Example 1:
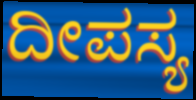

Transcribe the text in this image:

ದೀಪಸ್ಯ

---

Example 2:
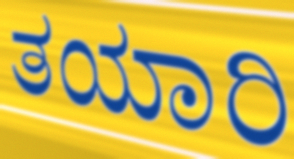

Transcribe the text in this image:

ತಯಾರಿ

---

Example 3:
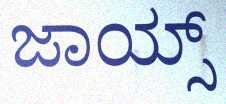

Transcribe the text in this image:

ಜಾಯ್ಸ್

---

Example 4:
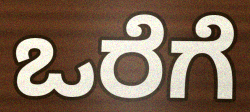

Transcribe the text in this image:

ಒರೆಗೆ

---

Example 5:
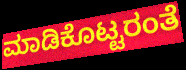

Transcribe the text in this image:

ಮಾಡಿಕೊಟ್ಟರಂತೆ